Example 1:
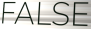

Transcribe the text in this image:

FALSE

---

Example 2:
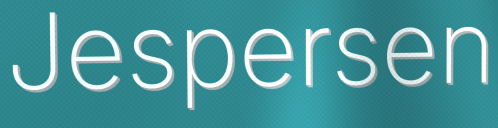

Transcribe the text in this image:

Jespersen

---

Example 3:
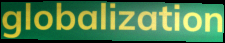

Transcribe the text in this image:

globalization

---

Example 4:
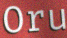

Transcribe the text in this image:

Oru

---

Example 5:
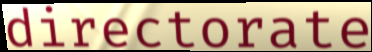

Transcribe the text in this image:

directorate